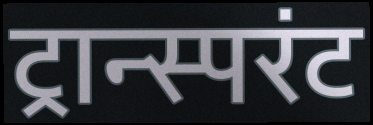
ट्रान्स्परंट